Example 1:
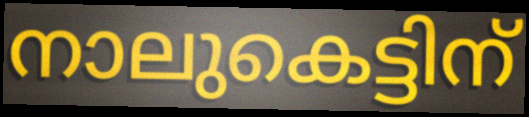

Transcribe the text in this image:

നാലുകെട്ടിന്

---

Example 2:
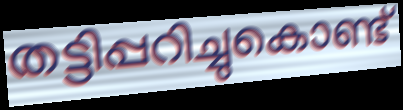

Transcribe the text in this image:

തട്ടിപ്പറിച്ചുകൊണ്ട്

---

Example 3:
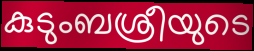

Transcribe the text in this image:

കുടുംബശ്രീയുടെ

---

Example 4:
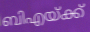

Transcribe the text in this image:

ബിഎയ്ക്ക്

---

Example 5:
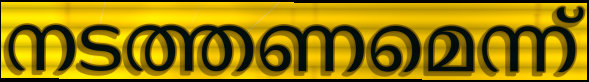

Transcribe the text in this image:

നടത്തണമെന്ന്